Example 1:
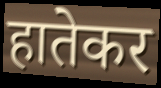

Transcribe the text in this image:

हातेकर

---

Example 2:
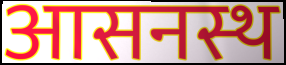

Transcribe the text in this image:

आसनस्थ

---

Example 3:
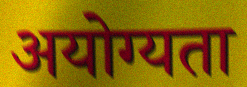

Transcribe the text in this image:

अयोग्यता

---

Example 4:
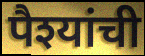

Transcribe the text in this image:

पैश्यांची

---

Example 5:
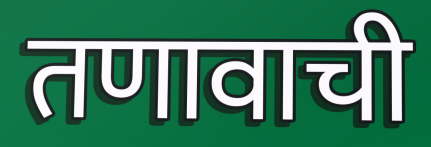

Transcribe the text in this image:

तणावाची